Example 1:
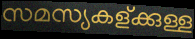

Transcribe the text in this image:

സമസ്യകള്ക്കുള്ള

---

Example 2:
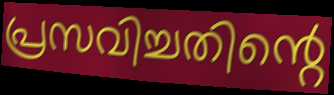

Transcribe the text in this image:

പ്രസവിച്ചതിന്റെ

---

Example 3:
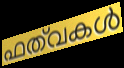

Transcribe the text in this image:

ഫത്‌വകൾ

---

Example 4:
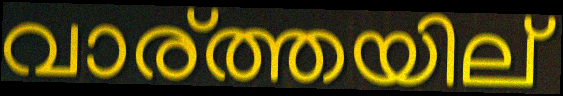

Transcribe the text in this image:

വാര്ത്തയില്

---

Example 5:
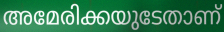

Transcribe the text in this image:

അമേരിക്കയുടേതാണ്